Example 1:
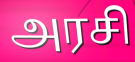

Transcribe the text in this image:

அரசி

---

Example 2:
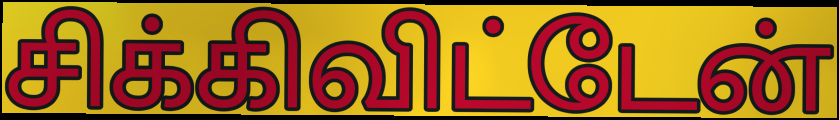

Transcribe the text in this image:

சிக்கிவிட்டேன்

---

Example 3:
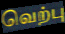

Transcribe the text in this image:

வெற்பு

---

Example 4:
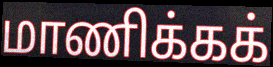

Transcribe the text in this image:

மாணிக்கக்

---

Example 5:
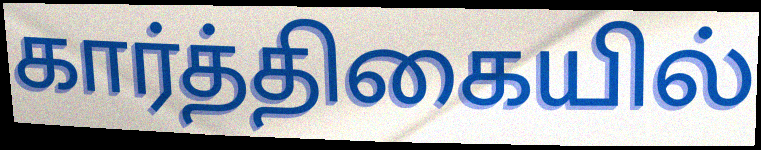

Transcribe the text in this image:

கார்த்திகையில்